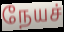
நேயச்